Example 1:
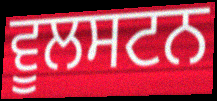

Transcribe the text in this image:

ਵੂਲਸਟਨ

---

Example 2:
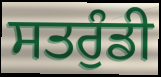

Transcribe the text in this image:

ਸਤਰੁੰਡੀ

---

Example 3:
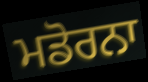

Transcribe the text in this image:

ਮਡੋਰਨਾ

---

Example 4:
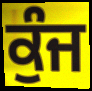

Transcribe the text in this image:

ਕੁੰਜ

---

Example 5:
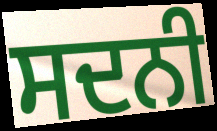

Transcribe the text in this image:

ਸਦਨੀ